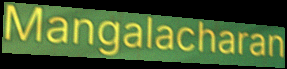
Mangalacharan